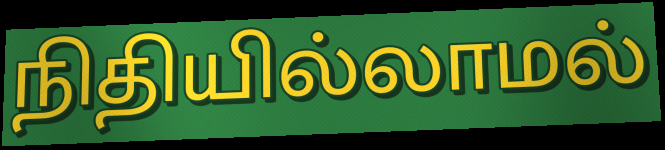
நிதியில்லாமல்